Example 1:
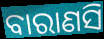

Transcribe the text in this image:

ବାରାଣସି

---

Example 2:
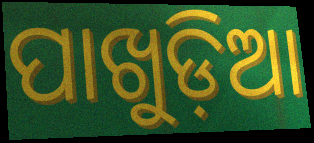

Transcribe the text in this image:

ପାଖୁଡ଼ିଆ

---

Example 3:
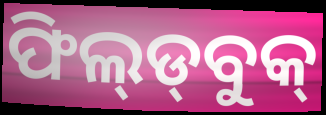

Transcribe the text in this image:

ଫିଲ୍‍ଡ୍‍ବୁକ୍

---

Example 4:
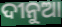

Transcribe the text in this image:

ଦୀନୁଆ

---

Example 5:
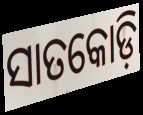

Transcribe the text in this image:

ସାତକୋଡ଼ି